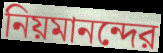
নিয়মানন্দের